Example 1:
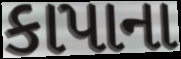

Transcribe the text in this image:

કાપાના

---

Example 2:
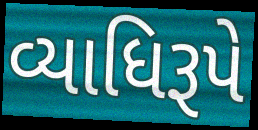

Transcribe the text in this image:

વ્યાધિરૂપે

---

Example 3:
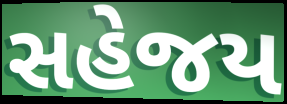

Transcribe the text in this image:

સહેજય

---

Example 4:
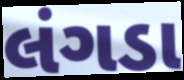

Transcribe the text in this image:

લંગડા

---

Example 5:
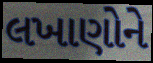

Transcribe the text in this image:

લખાણોને